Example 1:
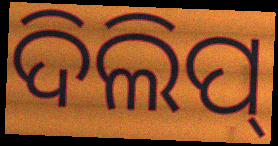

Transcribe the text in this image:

ଦିଲିପ୍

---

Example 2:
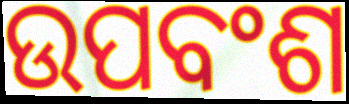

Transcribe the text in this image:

ଉପବଂଶ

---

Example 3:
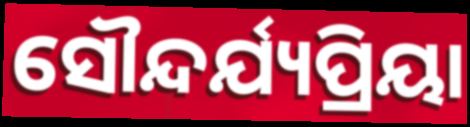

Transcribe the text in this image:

ସୌନ୍ଦର୍ଯ୍ୟପ୍ରିୟା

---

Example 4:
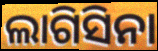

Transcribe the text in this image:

ଲାଗିସିନା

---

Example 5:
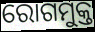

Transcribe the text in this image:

ରୋଗମୁକ୍ତ